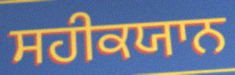
ਸਹੀਕਯਾਨ